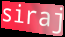
siraj